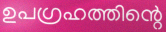
ഉപഗ്രഹത്തിന്റെ